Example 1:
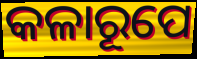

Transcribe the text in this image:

କଳାରୂପେ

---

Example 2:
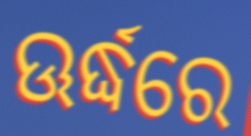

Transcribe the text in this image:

ଊର୍ଦ୍ଧରେ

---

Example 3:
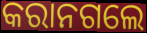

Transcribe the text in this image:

କରାନଗଲେ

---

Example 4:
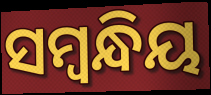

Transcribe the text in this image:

ସମ୍ଵନ୍ଧିୟ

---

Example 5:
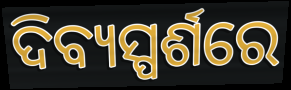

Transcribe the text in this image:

ଦିବ୍ୟସ୍ପର୍ଶରେ